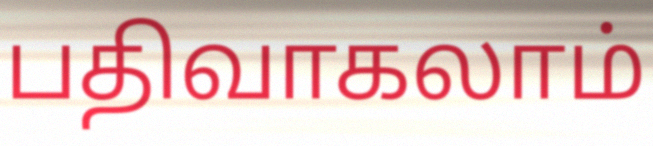
பதிவாகலாம்